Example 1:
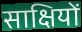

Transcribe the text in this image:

साक्षियों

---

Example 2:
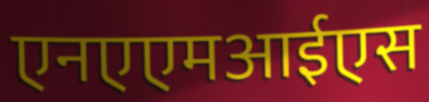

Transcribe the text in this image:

एनएएमआईएस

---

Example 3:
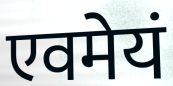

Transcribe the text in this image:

एवमेयं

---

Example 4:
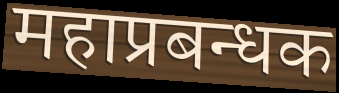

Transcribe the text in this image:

महाप्रबन्धक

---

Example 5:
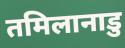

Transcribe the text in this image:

तमिलानाडु